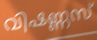
വിഷണ്ണസ്